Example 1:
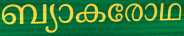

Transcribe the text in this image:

ബ്യാകരോഥ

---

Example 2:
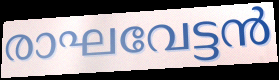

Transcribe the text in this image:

രാഘവേട്ടൻ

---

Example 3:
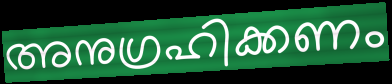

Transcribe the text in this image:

അനുഗ്രഹിക്കണം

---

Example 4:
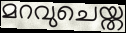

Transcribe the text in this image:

മറവുചെയ്ത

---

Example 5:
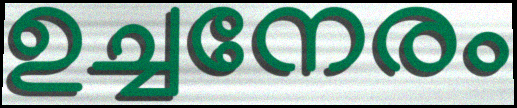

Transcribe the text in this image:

ഉച്ചനേരം